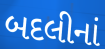
બદલીનાં